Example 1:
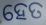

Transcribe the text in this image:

ହେତ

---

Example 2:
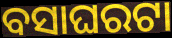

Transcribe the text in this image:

ବସାଘରଟା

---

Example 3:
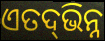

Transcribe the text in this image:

ଏତଦ୍‍ଭିନ୍ନ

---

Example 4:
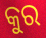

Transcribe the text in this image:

କୁର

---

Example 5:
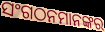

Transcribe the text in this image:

ସଂଗଠନମାନଙ୍କର